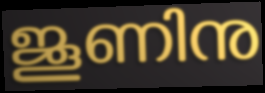
ജൂണിനു